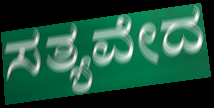
ಸತ್ಯವೇದ